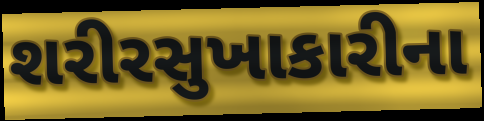
શરીરસુખાકારીના